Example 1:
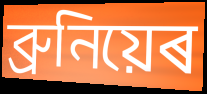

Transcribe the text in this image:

ব্ৰুনিয়েৰ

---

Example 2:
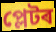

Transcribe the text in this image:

প্লেটৰ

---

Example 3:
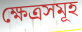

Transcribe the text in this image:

ক্ষেত্ৰসমূহ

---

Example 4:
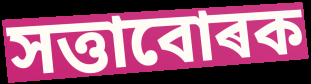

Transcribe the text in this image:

সত্তাবোৰক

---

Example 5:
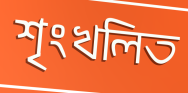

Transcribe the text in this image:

শৃংখলিত